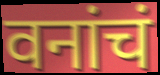
वनांचं